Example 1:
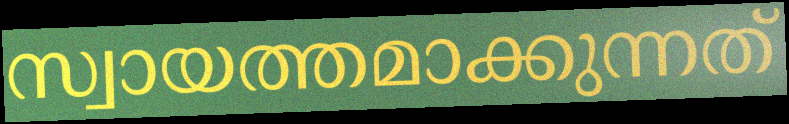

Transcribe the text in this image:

സ്വായത്തമാക്കുന്നത്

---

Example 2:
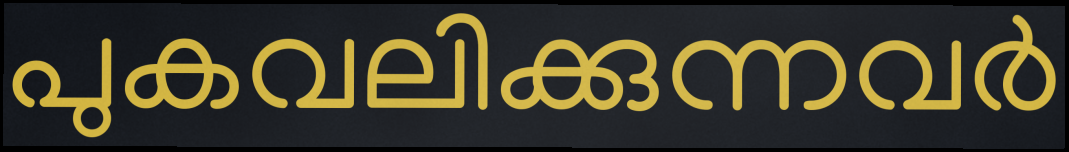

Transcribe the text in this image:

പുകവലിക്കുന്നവർ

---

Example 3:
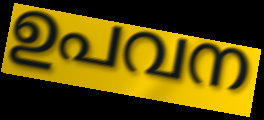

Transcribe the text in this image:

ഉപവന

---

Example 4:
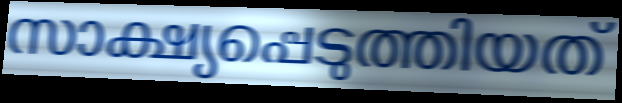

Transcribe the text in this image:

സാക്ഷ്യപ്പെടുത്തിയത്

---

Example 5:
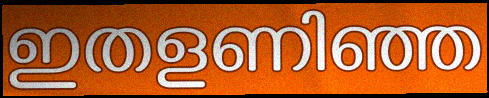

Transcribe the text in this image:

ഇതളണിഞ്ഞ